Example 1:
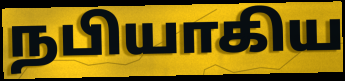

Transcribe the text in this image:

நபியாகிய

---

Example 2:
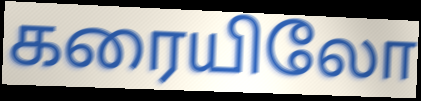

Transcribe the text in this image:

கரையிலோ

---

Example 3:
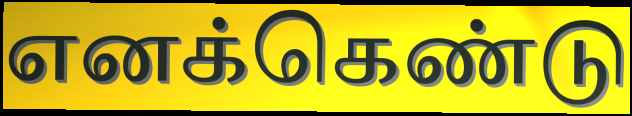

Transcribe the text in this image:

எனக்கெண்டு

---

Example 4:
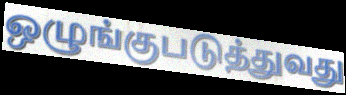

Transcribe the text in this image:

ஒழுங்குபடுத்துவது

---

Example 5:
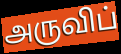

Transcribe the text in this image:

அருவிப்